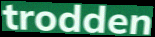
trodden